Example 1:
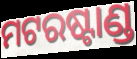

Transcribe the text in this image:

ମଟରଷ୍ଟାଣ୍ଡ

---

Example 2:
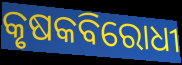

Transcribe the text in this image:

କୃଷକବିରୋଧୀ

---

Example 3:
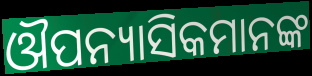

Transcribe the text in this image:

ଔପନ୍ୟାସିକମାନଙ୍କ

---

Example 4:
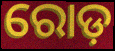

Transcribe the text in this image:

ରୋଡ଼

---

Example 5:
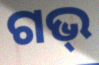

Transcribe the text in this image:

ଗଭ୍